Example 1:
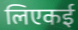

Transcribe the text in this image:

लिएकई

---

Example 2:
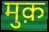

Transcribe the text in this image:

मुक़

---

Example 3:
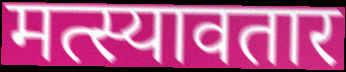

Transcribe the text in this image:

मत्स्यावतार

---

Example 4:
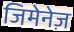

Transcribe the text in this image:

जिमेनेज़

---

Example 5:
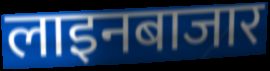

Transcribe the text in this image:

लाइनबाजार